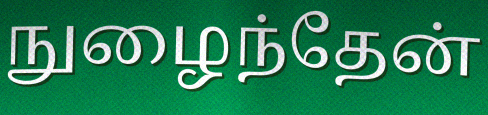
நுழைந்தேன்